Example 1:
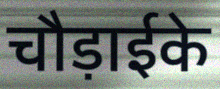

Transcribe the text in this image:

चौड़ाईके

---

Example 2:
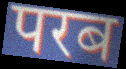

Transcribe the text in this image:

परब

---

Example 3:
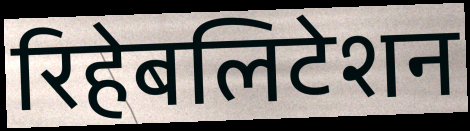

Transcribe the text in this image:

रिहेबलिटेशन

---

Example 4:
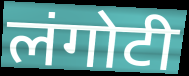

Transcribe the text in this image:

लंगोटी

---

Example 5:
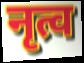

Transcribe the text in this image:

नृत्व